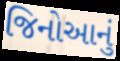
જિનોઆનું